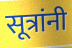
सूत्रांनी